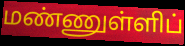
மண்ணுள்ளிப்